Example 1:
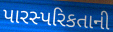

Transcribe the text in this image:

પારસ્પરિકતાની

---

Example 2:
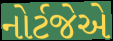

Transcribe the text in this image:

નોર્ટજેએ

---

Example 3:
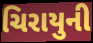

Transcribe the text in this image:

ચિરાયુની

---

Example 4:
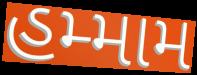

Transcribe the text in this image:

હમ્મામ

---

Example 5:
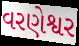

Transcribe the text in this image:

વરણેશ્વર